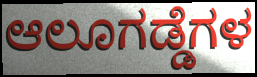
ಆಲೂಗಡ್ಡೆಗಳ